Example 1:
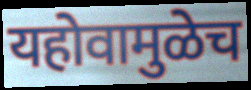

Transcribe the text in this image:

यहोवामुळेच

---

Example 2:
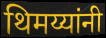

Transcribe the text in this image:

थिमय्यांनी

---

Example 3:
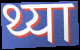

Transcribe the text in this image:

थ्या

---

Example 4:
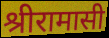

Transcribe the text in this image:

श्रीरामासी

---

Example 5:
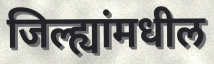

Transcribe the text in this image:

जिल्ह्यांमधील